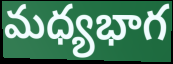
మధ్యభాగ